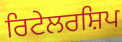
ਰਿਟੇਲਰਸ਼ਿਪ